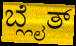
ಬ್ಲೈತ್